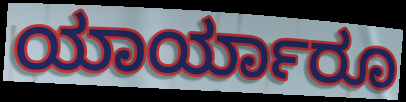
ಯಾರ್ಯಾರೂ